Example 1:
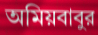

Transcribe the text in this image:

অমিয়বাবুর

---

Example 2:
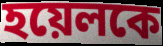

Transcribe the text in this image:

হয়েলকে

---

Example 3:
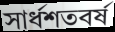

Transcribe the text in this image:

সার্ধশতবর্ষ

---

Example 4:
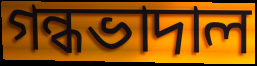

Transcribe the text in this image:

গন্ধভাদাল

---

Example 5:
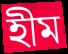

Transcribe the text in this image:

হীম